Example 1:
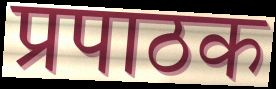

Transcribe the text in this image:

प्रपाठक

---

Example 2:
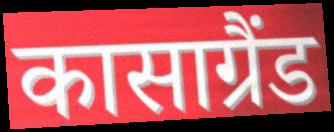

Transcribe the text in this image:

कासाग्रैंड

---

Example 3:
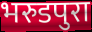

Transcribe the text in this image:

भरुडपुरा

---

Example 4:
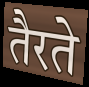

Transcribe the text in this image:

तैरते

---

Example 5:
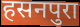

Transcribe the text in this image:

हसनपुरा